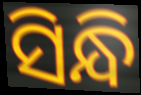
ସିନ୍ଧି